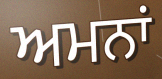
ਅਮਨਾਂ